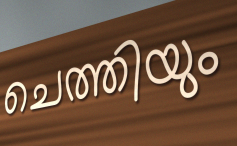
ചെത്തിയും